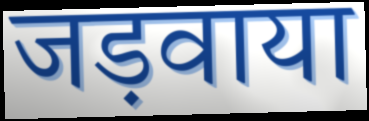
जड़वाया